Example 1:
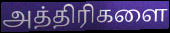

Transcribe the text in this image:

அத்திரிகளை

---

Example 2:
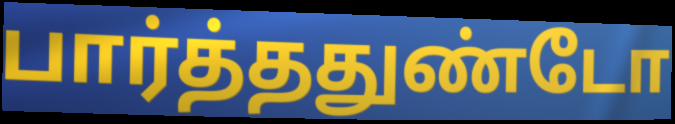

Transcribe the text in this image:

பார்த்ததுண்டோ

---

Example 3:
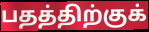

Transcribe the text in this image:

பதத்திற்குக்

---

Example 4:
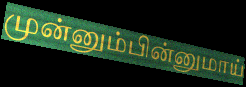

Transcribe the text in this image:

முன்னும்பின்னுமாய்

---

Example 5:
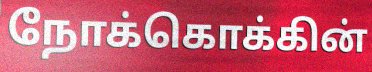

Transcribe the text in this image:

நோக்கொக்கின்